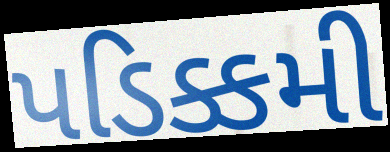
પડિક્કમી